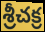
శ్రీచక్ర